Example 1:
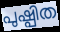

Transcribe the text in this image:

പുഷ്പിത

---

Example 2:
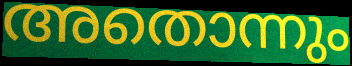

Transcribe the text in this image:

അതൊന്നും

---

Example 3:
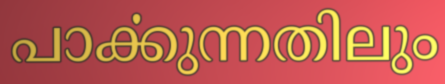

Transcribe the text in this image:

പാൎക്കുന്നതിലും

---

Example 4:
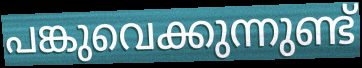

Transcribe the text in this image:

പങ്കുവെക്കുന്നുണ്ട്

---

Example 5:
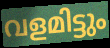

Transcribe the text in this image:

വളമിട്ടും